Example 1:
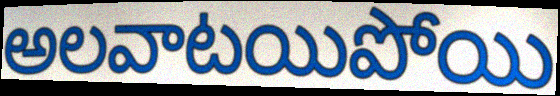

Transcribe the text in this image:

అలవాటయిపోయి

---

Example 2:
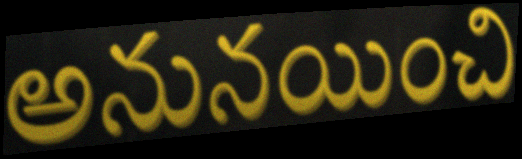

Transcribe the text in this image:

అనునయించి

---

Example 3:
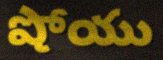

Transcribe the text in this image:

షోయు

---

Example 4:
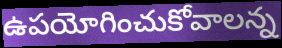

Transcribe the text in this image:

ఉపయోగించుకోవాలన్న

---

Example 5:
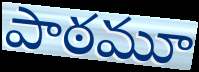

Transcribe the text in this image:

పాఠమూ